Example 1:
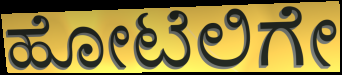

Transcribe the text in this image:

ಹೋಟೆಲಿಗೇ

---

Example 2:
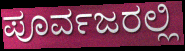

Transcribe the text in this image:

ಪೂರ್ವಜರಲ್ಲಿ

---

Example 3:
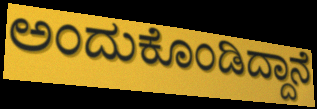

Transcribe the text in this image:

ಅಂದುಕೊಂಡಿದ್ದಾನೆ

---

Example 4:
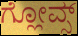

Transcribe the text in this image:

ಗ್ಲೋವ್ಸ್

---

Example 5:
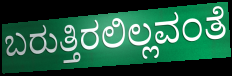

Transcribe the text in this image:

ಬರುತ್ತಿರಲಿಲ್ಲವಂತೆ